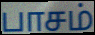
பாசம்